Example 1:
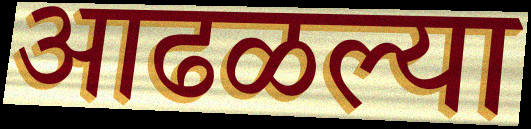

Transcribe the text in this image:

आढळल्या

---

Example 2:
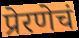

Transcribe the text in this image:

प्रेरणेचं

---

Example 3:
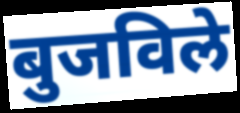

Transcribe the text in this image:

बुजविले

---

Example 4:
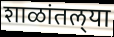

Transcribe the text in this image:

शाळांतल्या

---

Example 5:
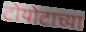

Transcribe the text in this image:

टोयोटाच्या